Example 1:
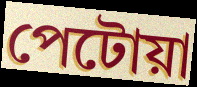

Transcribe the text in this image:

পেটোয়া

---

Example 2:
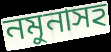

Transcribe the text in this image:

নমুনাসহ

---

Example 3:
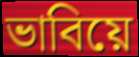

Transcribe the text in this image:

ভাবিয়ে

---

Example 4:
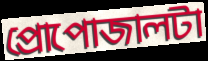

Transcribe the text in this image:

প্রোপোজালটা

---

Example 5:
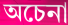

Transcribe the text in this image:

অচেনা